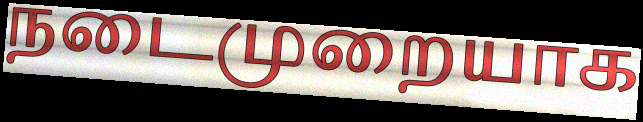
நடைமுறையாக